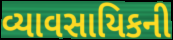
વ્યાવસાયિકની